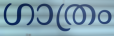
ഗാത്രം